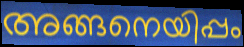
അങ്ങനെയിപ്പം